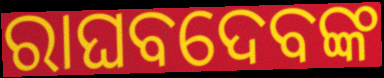
ରାଘବଦେବଙ୍କ